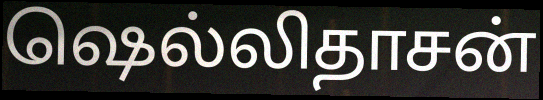
ஷெல்லிதாசன்